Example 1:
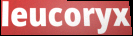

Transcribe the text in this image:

leucoryx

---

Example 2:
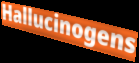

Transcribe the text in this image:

Hallucinogens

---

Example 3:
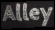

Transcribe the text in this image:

Alley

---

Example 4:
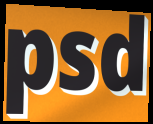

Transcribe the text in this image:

psd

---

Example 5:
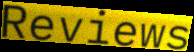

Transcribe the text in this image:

Reviews